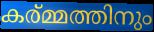
കര്മ്മത്തിനും